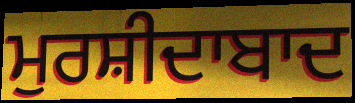
ਮੁਰਸ਼ੀਦਾਬਾਦ